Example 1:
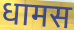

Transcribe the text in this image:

धामस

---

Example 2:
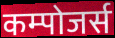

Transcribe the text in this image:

कम्पोजर्स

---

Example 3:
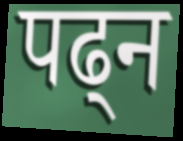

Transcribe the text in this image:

पढ्न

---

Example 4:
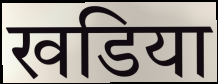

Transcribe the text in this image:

खडिया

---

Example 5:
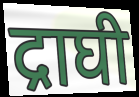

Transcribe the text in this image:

द्राघी